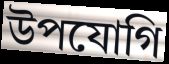
উপযোগি